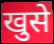
खुसे